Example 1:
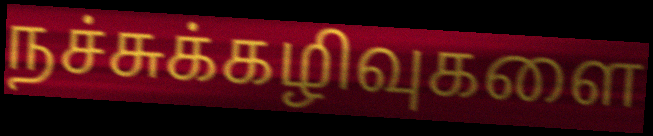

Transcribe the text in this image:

நச்சுக்கழிவுகளை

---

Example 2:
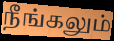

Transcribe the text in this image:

நீங்கலும்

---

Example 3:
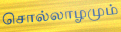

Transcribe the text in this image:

சொல்லாழமும்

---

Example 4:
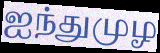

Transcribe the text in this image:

ஐந்துமுழ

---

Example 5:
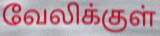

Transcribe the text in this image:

வேலிக்குள்